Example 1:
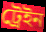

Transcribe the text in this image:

ট্ৰেইন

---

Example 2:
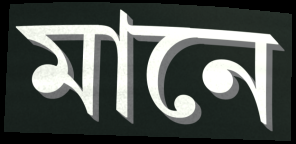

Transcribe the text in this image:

মানে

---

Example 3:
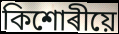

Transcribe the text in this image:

কিশোৰীয়ে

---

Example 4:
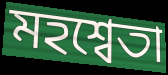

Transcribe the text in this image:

মহশ্বেতা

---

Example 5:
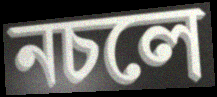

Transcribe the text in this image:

নচলে